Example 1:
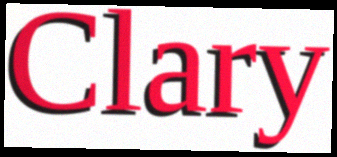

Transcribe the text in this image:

Clary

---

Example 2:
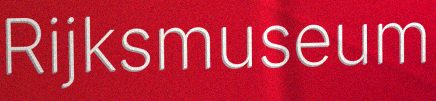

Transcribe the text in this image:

Rijksmuseum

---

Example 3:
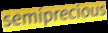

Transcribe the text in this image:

semiprecious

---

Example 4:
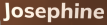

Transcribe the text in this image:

Josephine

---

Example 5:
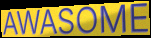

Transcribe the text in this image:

AWASOME